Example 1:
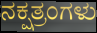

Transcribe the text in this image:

ನಕ್ಷತ್ರಂಗಳು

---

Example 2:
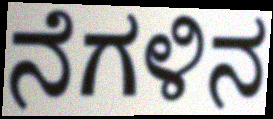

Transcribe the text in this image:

ನೆಗಳಿನ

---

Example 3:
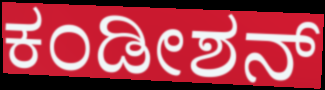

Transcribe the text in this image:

ಕಂಡೀಶನ್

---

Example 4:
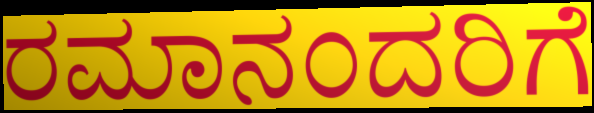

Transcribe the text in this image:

ರಮಾನಂದರಿಗೆ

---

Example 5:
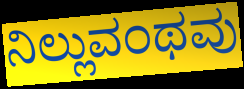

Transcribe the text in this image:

ನಿಲ್ಲುವಂಥವು